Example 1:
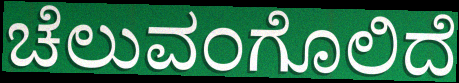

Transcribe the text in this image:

ಚೆಲುವಂಗೊಲಿದೆ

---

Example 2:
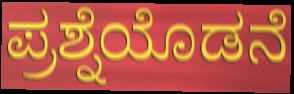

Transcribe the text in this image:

ಪ್ರಶ್ನೆಯೊಡನೆ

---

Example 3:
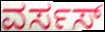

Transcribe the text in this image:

ವರ್ಸಸ್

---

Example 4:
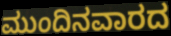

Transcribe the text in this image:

ಮುಂದಿನವಾರದ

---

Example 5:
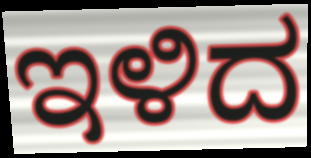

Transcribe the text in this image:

ಇಳಿದ